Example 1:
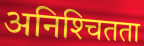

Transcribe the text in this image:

अनिश्‍चितता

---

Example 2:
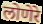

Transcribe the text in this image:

लोणेरे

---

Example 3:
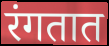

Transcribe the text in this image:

रंगतात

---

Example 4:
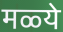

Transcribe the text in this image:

मळ्ये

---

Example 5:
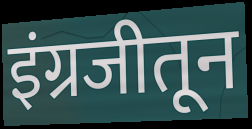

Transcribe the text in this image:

इंग्रजीतून